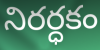
నిరర్ధకం